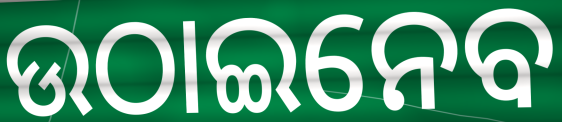
ଉଠାଇନେବ